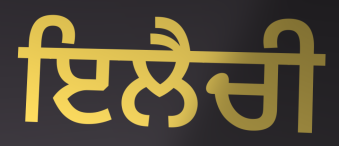
ਇਲੈਚੀ